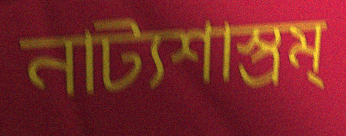
নাট্যশাস্ত্রম্